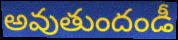
అవుతుందండీ